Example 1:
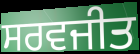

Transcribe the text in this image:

ਸਰਵਜੀਤ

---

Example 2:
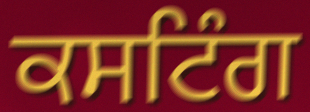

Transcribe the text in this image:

ਕਸਟਿੰਗ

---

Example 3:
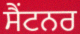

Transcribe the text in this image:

ਸੈਂਟਨਰ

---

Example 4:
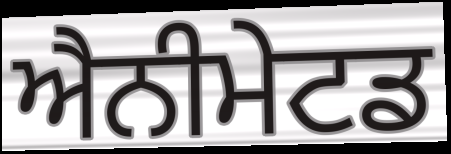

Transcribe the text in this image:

ਐਨੀਮੇਟਡ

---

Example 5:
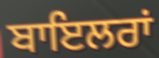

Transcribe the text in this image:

ਬਾਇਲਰਾਂ